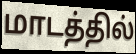
மாடத்தில்